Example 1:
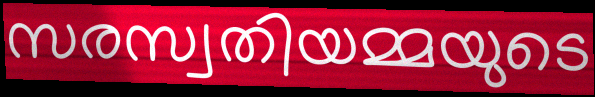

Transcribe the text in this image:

സരസ്വതിയമ്മയുടെ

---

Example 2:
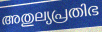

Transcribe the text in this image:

അതുല്യപ്രതിഭ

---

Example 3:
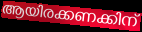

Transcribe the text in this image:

ആയിരക്കണക്കിന്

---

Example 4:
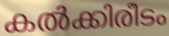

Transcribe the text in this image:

കൽക്കിരീടം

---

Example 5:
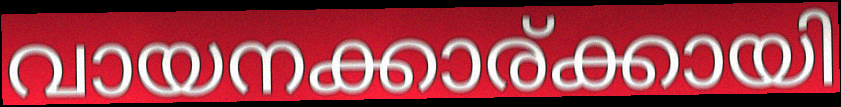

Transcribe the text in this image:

വായനക്കാര്ക്കായി